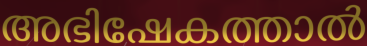
അഭിഷേകത്താൽ